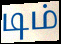
டிம்